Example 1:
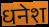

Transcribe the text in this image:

धनेश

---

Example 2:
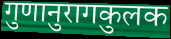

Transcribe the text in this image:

गुणानुरागकुलक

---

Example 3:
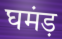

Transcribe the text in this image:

घमंड़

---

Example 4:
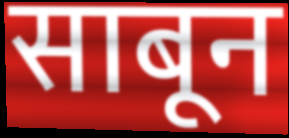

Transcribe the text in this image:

साबून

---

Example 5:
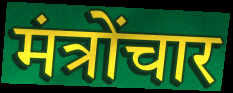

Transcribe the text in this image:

मंत्रोंचार